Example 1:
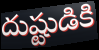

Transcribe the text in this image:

దుష్టుడికి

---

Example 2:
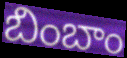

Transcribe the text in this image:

బింబాం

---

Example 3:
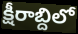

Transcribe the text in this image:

క్షీరాబ్దిలో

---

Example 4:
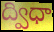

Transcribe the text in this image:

ద్విధా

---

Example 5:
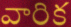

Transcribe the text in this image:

వారిక